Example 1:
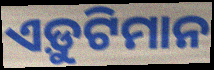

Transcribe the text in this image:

ଏଡ଼ୁଟିମାନ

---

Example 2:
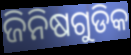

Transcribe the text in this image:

ଜିନିଷଗୁଡିକ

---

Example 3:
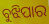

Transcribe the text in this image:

ବୁଝିପାର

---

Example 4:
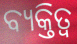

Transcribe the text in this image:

ବ୍ୟକ୍ତିତ୍ଵ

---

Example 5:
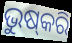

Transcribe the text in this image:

ଭୁଷ୍‌କରି